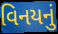
વિનયનું